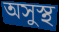
অসুস্থ